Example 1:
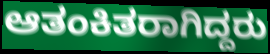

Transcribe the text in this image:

ಆತಂಕಿತರಾಗಿದ್ದರು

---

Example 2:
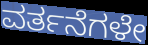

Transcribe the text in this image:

ವರ್ತನೆಗಳೇ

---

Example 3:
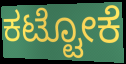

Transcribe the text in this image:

ಕಟ್ಟೋಕೆ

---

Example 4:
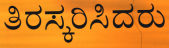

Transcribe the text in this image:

ತಿರಸ್ಕರಿಸಿದರು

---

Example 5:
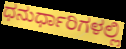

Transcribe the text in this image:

ಧನುರ್ಧಾರಿಗಳಲ್ಲಿ